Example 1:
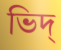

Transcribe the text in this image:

ভিদ্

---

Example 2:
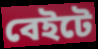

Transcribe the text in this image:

বেইটে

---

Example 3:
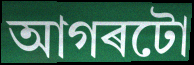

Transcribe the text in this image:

আগৰটো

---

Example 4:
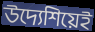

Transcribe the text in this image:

উদ্যেশিয়েই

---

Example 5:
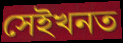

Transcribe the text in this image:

সেইখনত